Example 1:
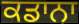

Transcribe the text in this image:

ਕਡਾਨਾ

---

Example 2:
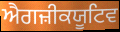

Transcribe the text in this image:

ਐਗਜ਼ੀਕਯੂਟਿਵ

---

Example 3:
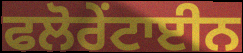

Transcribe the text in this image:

ਫਲੋਰੇਂਟਾਈਨ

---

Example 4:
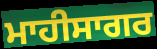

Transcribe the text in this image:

ਮਾਹੀਸਾਗਰ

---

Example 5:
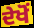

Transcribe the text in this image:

ਦੇਖੋਂ